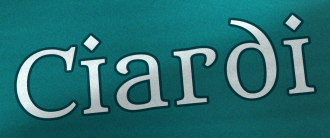
Ciardi